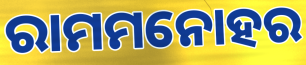
ରାମମନୋହର